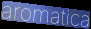
aromatica